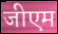
जीएम